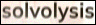
solvolysis